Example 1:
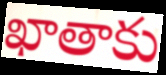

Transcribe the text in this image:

ఖాతాకు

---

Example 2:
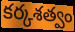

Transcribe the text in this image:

కర్కశత్వం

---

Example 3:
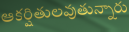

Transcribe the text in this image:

ఆకర్షితులవుతున్నారు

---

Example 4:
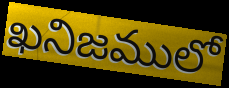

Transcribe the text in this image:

ఖనిజములో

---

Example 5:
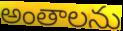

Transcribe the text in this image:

అంతాలను